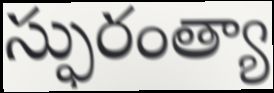
స్ఫురంత్యా